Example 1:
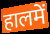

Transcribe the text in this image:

हालमें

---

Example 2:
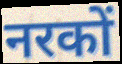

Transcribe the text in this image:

नरकों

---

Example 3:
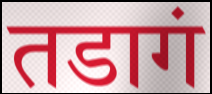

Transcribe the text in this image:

तडागं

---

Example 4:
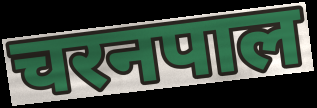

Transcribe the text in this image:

चरनपाल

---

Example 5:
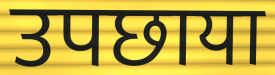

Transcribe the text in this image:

उपछाया